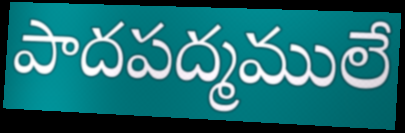
పాదపద్మములే